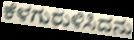
ಕೆಳಗುರುಳಿಸಿದನು